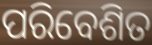
ପରିବେଶିତ